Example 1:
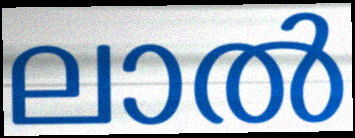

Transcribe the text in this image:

ലാൽ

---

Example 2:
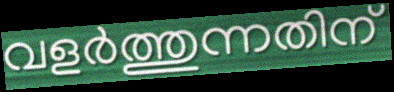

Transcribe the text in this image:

വളർത്തുന്നതിന്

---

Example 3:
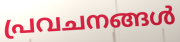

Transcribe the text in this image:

പ്രവചനങ്ങൾ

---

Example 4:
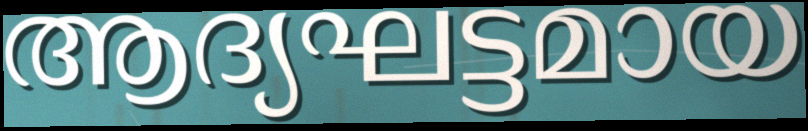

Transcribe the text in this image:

ആദ്യഘട്ടമായ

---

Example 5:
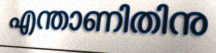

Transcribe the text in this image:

എന്താണിതിനു